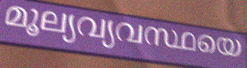
മൂല്യവ്യവസ്ഥയെ